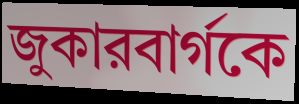
জুকারবার্গকে